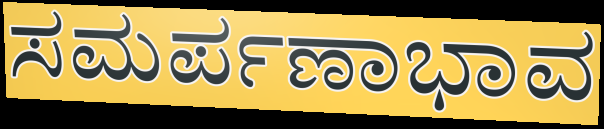
ಸಮರ್ಪಣಾಭಾವ